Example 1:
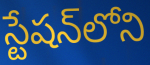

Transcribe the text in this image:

స్టేషన్‌లోని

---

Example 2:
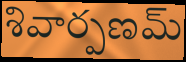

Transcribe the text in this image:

శివార్పణమ్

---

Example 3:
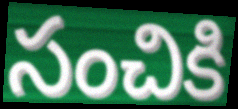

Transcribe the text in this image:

సంచికి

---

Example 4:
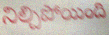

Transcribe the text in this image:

నిల్చిపోయింది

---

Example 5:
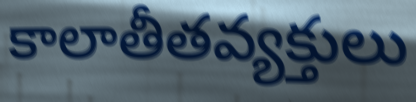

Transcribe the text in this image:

కాలాతీతవ్యక్తులు